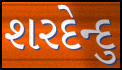
શરદેન્દુ